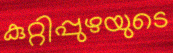
കുറ്റിപ്പുഴയുടെ